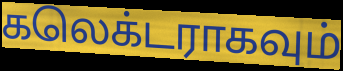
கலெக்டராகவும்